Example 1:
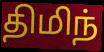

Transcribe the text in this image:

திமிந்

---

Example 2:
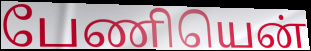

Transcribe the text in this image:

பேணியென்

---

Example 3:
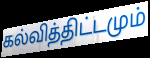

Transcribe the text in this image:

கல்வித்திட்டமும்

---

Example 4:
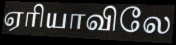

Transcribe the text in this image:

ஏரியாவிலே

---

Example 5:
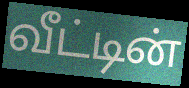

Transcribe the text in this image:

வீட்டின்